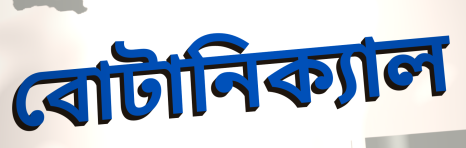
বোটানিক্যাল